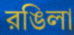
রঙিলা